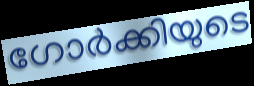
ഗോർക്കിയുടെ